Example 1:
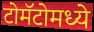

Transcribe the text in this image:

टोमॅटोमध्ये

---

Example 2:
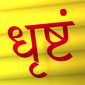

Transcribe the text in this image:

धृष्टं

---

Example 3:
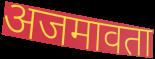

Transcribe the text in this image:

अजमावता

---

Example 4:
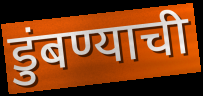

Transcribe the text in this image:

डुंबण्याची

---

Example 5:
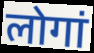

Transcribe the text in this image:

लोगां